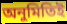
অনুমিতিই